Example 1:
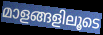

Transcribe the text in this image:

മാളങ്ങളിലൂടെ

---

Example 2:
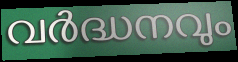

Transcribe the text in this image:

വർദ്ധനവും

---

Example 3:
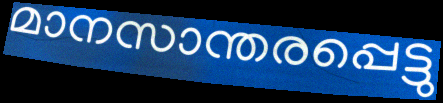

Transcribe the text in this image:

മാനസാന്തരപ്പെട്ടു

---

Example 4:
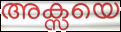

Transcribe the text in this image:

അക്സയെ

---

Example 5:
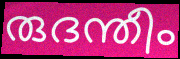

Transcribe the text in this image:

രുദന്തീം